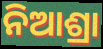
ନିଆଶ୍ରା